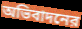
অভিবাদনের